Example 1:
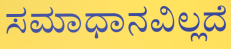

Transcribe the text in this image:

ಸಮಾಧಾನವಿಲ್ಲದೆ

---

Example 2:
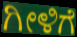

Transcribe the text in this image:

ಗೀಳಿಗೆ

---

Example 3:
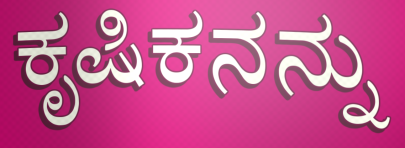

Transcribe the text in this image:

ಕೃಷಿಕನನ್ನು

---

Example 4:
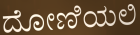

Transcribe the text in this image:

ದೋಣಿಯಲಿ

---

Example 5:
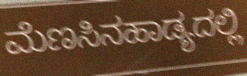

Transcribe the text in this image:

ಮೆಣಸಿನಹಾಡ್ಯದಲ್ಲಿ